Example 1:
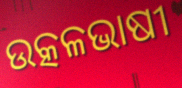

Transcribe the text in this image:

ଉତ୍କଳଭାଷୀ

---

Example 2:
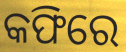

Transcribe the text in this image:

କଫିରେ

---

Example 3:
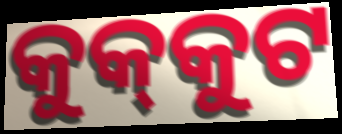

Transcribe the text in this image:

କୁକ୍‍କୁଟ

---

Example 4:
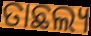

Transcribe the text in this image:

ତାଛଲ୍ୟ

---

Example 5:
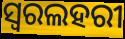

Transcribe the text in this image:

ସ୍ୱରଲହରୀ